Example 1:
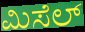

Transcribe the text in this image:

ಮಿಸೆಲ್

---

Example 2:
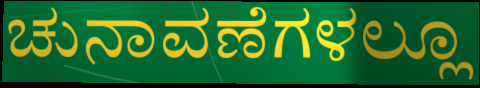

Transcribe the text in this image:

ಚುನಾವಣೆಗಳಲ್ಲೂ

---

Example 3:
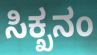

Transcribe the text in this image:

ಸಿಕ್ಖನಂ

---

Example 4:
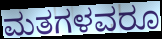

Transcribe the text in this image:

ಮತಗಳವರೂ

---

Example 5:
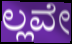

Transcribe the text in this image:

ಲ್ಲವೇ